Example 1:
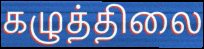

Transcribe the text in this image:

கழுத்திலை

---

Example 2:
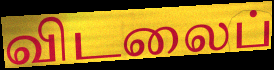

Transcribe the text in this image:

விடலைப்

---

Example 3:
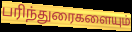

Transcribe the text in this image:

பரிந்துரைகளையும்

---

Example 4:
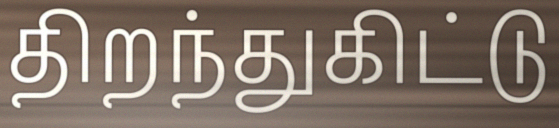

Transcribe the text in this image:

திறந்துகிட்டு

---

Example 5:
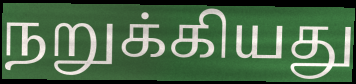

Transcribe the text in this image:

நறுக்கியது